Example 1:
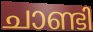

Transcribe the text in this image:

ചാണ്ടി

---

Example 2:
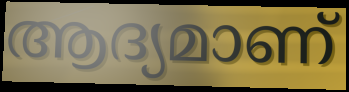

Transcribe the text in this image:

ആദ്യമാണ്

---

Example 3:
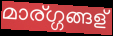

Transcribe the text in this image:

മാര്ഗ്ഗങ്ങള്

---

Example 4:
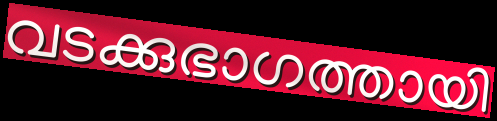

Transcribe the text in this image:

വടക്കുഭാഗത്തായി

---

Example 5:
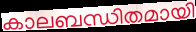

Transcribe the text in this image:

കാലബന്ധിതമായി